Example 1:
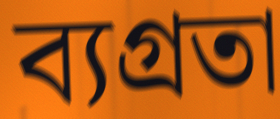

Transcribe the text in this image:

ব্যগ্রতা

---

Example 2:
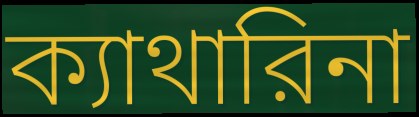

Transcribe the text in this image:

ক্যাথারিনা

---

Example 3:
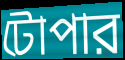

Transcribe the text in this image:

টোপার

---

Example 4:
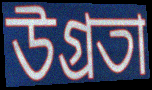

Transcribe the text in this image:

উগ্রতা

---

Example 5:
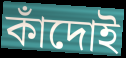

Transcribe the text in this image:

কাঁদোই